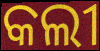
କଲୀ